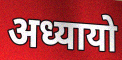
अध्यायो